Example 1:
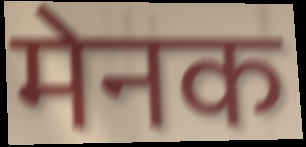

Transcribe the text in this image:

मेनक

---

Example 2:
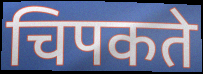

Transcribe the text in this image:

चिपकते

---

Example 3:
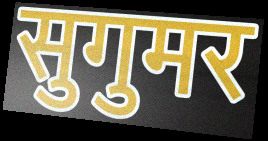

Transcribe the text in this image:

सुगुमर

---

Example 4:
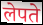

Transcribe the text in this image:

लेपते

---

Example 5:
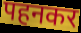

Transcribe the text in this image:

पहनकर